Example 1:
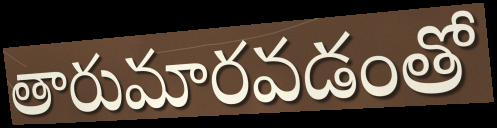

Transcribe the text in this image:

తారుమారవడంతో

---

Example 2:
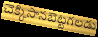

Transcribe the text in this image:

చెక్కిసానబెట్టగలడు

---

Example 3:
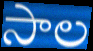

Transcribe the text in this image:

సాల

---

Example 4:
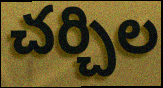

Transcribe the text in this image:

చర్చిల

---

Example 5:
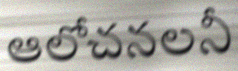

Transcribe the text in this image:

ఆలోచనలనీ